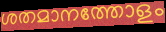
ശതമാനത്തോളം